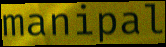
manipal